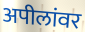
अपीलांवर